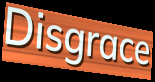
Disgrace